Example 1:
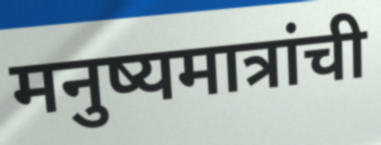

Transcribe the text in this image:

मनुष्यमात्रांची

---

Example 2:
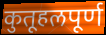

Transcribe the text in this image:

कुतूहलपूर्ण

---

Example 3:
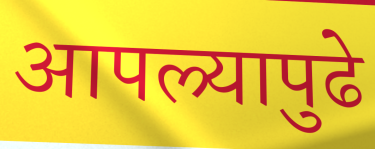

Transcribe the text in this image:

आपल्यापुढे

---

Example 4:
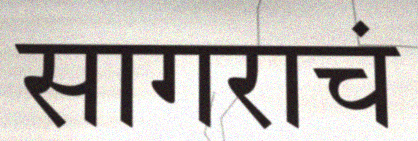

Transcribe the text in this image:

सागराचं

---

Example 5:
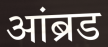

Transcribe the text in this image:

आंब्रड